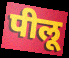
पीलू